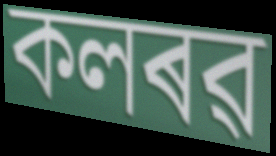
কলৰৱ